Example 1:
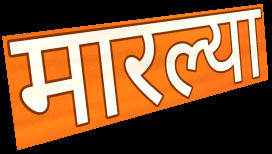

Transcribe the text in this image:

मारल्या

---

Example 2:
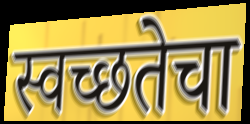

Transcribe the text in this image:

स्वच्छतेचा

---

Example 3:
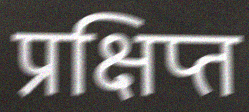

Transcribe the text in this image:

प्रक्षिप्त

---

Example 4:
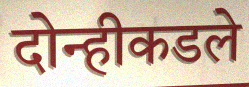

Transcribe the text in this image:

दोन्हीकडले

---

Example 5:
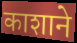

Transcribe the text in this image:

काशाने